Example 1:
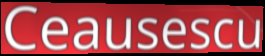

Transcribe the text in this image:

Ceausescu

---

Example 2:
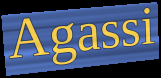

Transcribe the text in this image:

Agassi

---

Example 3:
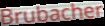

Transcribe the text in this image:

Brubacher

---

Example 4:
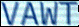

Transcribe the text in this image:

VAWT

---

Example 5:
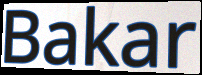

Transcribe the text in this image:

Bakar